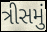
ત્રીસમું